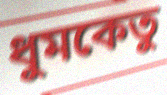
ধুমকেতু